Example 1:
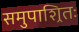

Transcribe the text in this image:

समुपाश्रितः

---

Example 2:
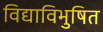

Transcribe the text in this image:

विद्याविभुषित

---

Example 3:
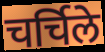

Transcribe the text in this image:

चर्चिले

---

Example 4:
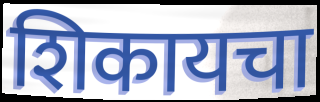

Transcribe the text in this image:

शिकायचा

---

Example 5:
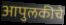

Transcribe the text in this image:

आपुलकीचे